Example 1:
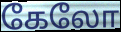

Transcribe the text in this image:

கேலோ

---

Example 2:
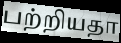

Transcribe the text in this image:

பற்றியதா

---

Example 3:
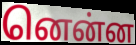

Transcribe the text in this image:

னென்ன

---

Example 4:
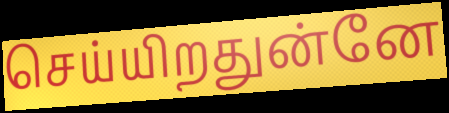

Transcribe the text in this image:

செய்யிறதுன்னே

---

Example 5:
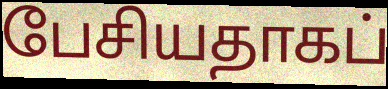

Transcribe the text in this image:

பேசியதாகப்